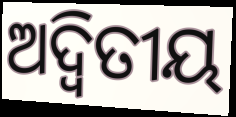
ଅଦ୍ୱିତୀୟ